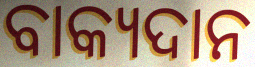
ବାକ୍ୟଦାନ